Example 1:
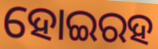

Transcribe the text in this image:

ହୋଇରହ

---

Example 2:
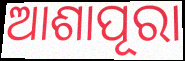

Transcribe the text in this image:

ଆଶାପୂରା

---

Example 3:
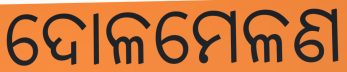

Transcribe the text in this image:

ଦୋଳମେଳଣ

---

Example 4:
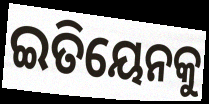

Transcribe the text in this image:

ଇତିୟେନକୁ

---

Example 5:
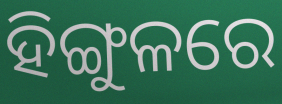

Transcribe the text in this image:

ହିଙ୍ଗୁଳରେ